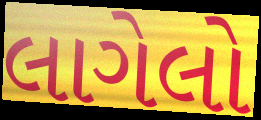
લાગેલો